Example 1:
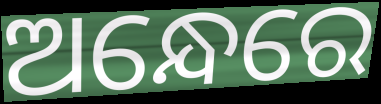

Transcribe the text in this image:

ଅନ୍ଧେରେ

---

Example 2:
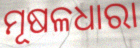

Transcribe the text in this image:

ମୂଷଳଧାରା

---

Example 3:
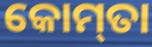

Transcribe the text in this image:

କୋମ୍‌ତା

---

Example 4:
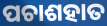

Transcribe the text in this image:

ପଚାଶହାତ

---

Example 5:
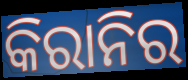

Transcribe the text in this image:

କିରାନିର